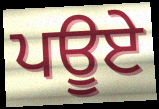
ਪਊਏ